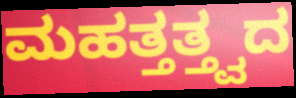
ಮಹತ್ತತ್ತ್ವದ